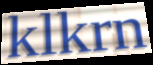
klkrn